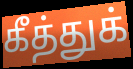
கீத்துக்